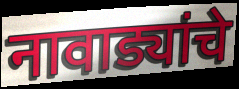
नावाड्यांचे